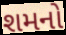
શમનો